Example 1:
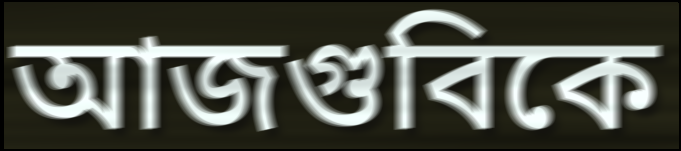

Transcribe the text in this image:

আজগুবিকে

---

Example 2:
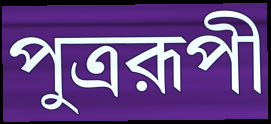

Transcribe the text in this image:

পুত্ররূপী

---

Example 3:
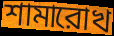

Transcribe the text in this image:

শামারোখ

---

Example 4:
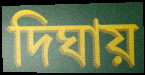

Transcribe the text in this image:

দিঘায়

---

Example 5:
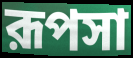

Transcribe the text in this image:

রূপসা